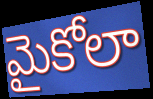
మైకోలా